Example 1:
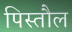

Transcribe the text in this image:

पिस्तौल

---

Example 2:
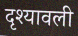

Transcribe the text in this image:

दृश्यावली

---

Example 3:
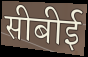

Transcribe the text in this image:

सीबीई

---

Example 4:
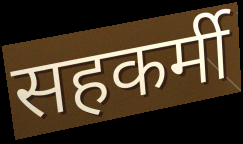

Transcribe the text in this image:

सहकर्मी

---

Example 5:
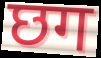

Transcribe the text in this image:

छग